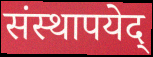
संस्थापयेद्